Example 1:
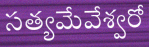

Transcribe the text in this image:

సత్యమేవేశ్వరో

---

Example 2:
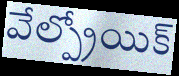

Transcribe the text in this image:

వేల్ప్రోయిక్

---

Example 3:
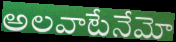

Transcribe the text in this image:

అలవాటేనేమో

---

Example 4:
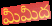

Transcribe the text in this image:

మీమీద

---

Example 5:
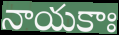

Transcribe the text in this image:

నాయకాః